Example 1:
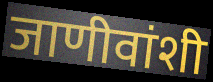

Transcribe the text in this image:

जाणीवांशी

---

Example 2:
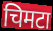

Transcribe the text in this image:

चिमटा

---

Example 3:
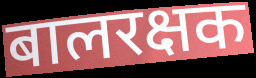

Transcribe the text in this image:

बालरक्षक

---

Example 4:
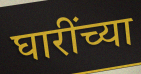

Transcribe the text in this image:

घारींच्या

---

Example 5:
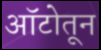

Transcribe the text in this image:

ऑटोतून